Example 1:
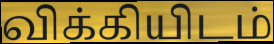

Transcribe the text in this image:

விக்கியிடம்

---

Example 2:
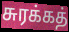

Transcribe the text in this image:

சுரக்கத்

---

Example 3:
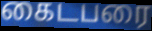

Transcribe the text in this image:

கைடபரை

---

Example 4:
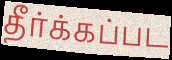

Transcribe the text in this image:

தீர்க்கப்பட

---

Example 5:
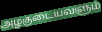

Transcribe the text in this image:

அழகுடையவளும்